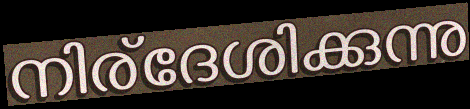
നിര്ദേശിക്കുന്നു